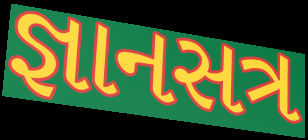
જ્ઞાનસત્ર